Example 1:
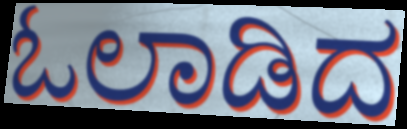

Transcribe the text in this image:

ಓಲಾಡಿದ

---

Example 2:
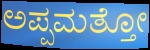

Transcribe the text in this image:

ಅಪ್ಪಮತ್ತೋ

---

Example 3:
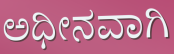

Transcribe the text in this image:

ಅಧೀನವಾಗಿ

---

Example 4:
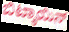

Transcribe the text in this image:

ಬಿಟ್ಕಾಯಿನ್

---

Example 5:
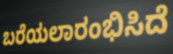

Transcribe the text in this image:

ಬರೆಯಲಾರಂಭಿಸಿದೆ